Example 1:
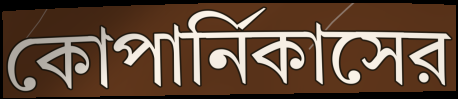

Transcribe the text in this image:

কোপার্নিকাসের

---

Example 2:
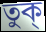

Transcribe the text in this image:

তুক্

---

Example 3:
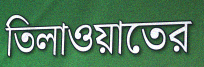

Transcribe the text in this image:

তিলাওয়াতের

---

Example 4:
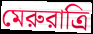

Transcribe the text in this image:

মেরুরাত্রি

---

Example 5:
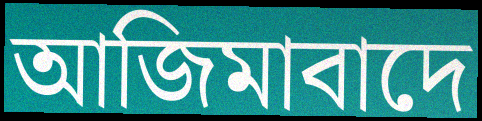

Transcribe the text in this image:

আজিমাবাদে